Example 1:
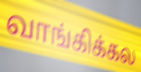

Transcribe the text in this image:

வாங்கிக்கல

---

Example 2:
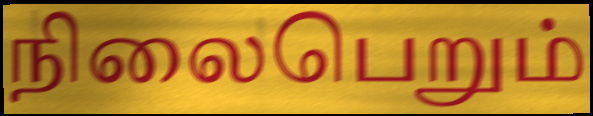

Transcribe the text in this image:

நிலைபெறும்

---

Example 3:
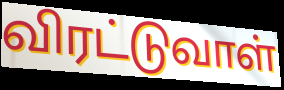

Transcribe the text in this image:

விரட்டுவாள்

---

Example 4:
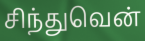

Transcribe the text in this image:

சிந்துவென்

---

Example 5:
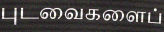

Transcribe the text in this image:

புடவைகளைப்